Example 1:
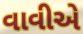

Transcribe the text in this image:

વાવીએ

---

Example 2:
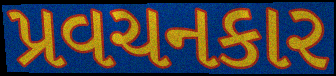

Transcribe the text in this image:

પ્રવચનકાર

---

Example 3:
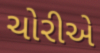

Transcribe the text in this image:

ચોરીએ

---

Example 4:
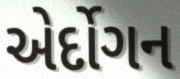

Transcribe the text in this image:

એર્દોગન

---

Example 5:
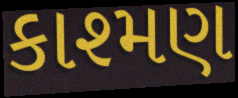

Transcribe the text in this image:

કાશ્મણ